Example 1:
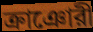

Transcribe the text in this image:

ক্রাঞোরী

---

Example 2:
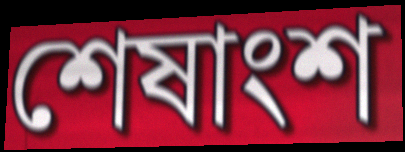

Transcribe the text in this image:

শেষাংশ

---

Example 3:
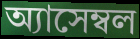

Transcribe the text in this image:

অ্যাসেম্বল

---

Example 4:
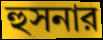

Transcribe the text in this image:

হুসনার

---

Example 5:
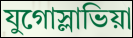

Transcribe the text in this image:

যুগোস্লাভিয়া